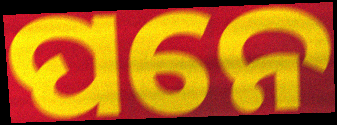
ପନେ